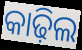
କାଢ଼ିଲ